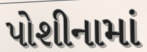
પોશીનામાં